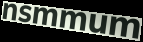
nsmmum